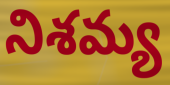
నిశమ్య